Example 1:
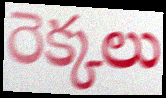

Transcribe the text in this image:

రెక్కలు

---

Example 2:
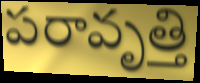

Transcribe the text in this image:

పరావృత్తి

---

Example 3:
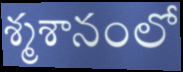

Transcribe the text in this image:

శ్మశానంలో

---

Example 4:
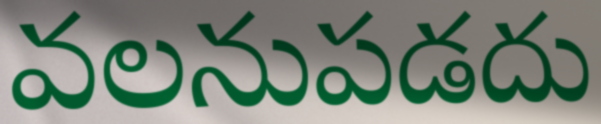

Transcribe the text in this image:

వలనుపడదు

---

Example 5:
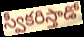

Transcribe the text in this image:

స్వీకరిస్తాడో